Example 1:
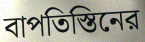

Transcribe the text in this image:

বাপতিস্তিনের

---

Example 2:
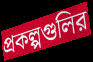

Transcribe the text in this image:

প্রকল্পগুলির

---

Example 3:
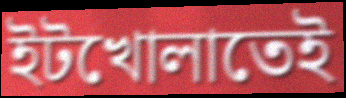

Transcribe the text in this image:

ইটখোলাতেই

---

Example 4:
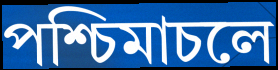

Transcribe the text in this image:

পশ্চিমাচলে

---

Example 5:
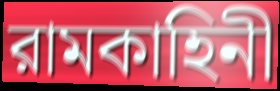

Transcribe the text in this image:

রামকাহিনী